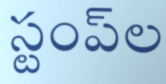
స్టంప్‌ల